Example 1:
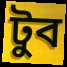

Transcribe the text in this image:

টুব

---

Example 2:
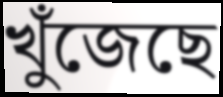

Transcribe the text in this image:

খুঁজেছে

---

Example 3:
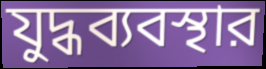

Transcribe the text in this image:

যুদ্ধব্যবস্থার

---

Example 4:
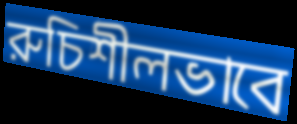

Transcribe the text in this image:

রুচিশীলভাবে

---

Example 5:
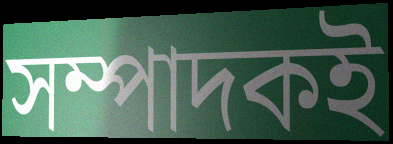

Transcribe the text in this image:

সম্পাদকই